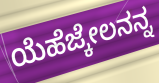
ಯೆಹೆಜ್ಕೇಲನನ್ನ